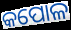
କପୋଳ